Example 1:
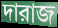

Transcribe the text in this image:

দারাজ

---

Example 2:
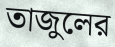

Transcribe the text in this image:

তাজুলের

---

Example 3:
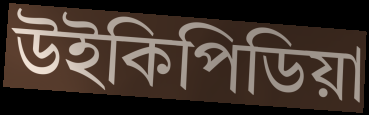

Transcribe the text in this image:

উইকিপিডিয়া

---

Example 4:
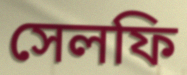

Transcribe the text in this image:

সেলফি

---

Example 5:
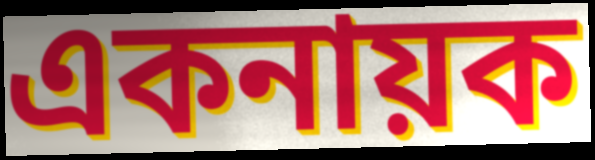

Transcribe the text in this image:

একনায়ক